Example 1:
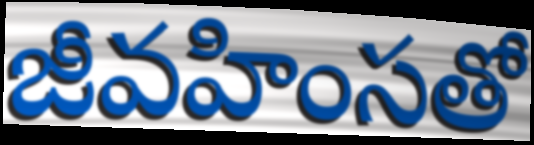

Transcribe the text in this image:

జీవహింసతో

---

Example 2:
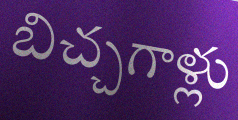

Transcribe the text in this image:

బిచ్చగాళ్లు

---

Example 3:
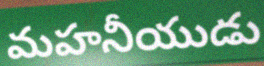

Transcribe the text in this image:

మహనీయుడు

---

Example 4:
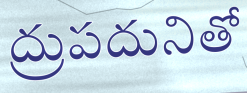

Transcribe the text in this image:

ద్రుపదునితో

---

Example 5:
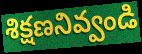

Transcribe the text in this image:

శిక్షణనివ్వండి